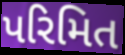
પરિમિત